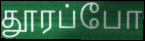
தூரப்போ